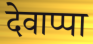
देवाप्पा